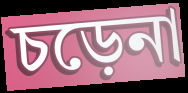
চড়েনা